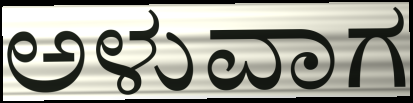
ಅಳುವಾಗ